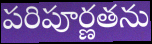
పరిపూర్ణతను